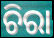
ଚିରା